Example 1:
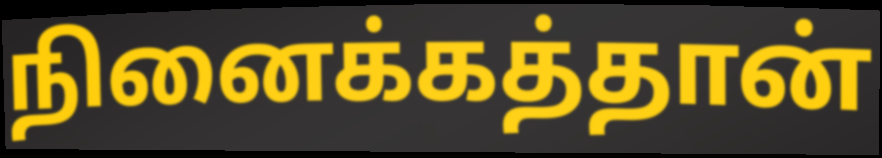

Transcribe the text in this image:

நினைக்கத்தான்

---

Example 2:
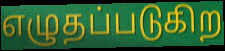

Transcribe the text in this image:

எழுதப்படுகிற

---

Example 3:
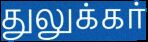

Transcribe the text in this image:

துலுக்கர்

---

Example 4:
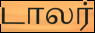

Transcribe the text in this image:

டாலர்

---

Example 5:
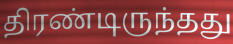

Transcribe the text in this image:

திரண்டிருந்தது